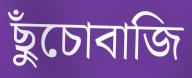
ছুঁচোবাজি